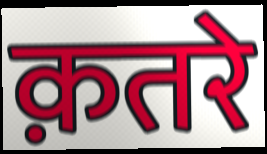
क़तरे